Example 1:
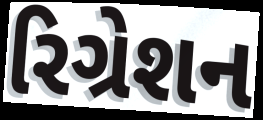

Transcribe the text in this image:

રિગ્રેશન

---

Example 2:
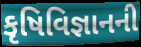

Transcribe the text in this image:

કૃષિવિજ્ઞાનની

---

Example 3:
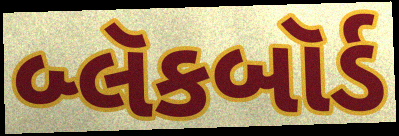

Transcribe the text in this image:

બ્લૅકબૉર્ડ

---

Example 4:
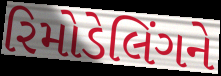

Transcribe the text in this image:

રિમોડેલિંગને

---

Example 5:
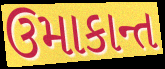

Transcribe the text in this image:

ઉમાકાન્ત